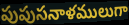
పుపుసనాళములుగా